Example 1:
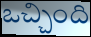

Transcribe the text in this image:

ఒచ్చింది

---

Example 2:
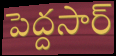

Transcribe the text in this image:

పెద్దసార్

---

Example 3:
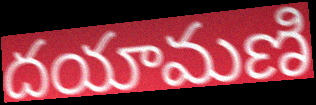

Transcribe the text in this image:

దయామణి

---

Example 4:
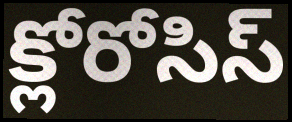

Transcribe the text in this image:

క్లోరోసిస్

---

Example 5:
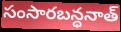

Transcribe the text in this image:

సంసారబన్ధనాత్